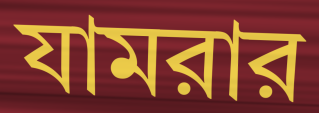
যামরার